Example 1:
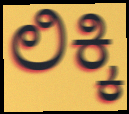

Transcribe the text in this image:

ಲಿಕ್ಕಿ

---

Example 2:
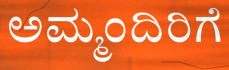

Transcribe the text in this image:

ಅಮ್ಮಂದಿರಿಗೆ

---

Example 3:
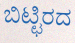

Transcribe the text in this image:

ಬಿಟ್ಟಿರದ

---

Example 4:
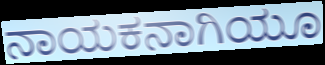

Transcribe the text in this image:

ನಾಯಕನಾಗಿಯೂ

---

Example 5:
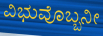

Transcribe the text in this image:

ವಿಭುವೊಬ್ಬನೀ